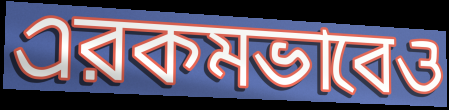
এরকমভাবেও